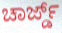
ಚಾರ್ಜ್ಡ್